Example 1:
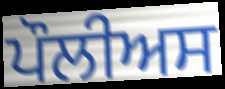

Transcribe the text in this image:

ਪੌਲੀਅਸ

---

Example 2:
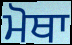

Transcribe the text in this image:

ਮੋਥਾ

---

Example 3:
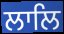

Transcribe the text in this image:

ਲਾਲਿ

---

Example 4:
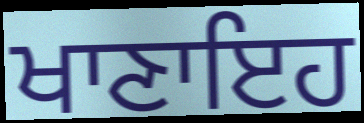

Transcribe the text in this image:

ਖਾਣਾਇਹ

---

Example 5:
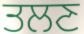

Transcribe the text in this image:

ਤਲਣ